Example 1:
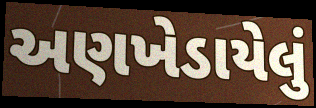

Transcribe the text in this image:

અણખેડાયેલું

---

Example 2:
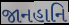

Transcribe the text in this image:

જાનહાનિ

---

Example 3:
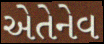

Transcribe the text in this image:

એતેનેવ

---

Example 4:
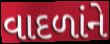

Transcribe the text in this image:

વાદળાંને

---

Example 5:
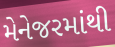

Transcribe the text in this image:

મેનેજરમાંથી